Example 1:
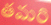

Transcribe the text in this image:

తమరి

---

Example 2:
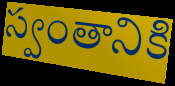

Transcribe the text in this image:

స్వంతానికి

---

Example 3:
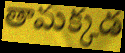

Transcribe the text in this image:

తామక్కడ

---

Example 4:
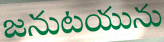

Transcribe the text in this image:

జనుటయును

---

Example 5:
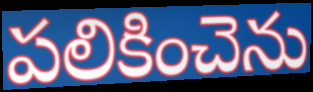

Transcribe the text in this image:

పలికించెను